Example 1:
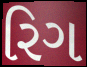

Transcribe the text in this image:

રિગ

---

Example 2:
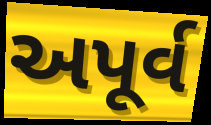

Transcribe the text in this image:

અપૂર્વ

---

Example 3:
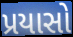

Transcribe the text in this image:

પ્રયાસો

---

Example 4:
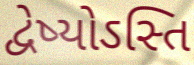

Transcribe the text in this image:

દ્વેષ્યોઽસ્તિ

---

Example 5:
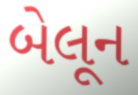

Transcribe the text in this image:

બેલૂન